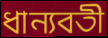
ধান্যবতী